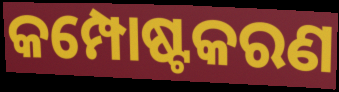
କମ୍ପୋଷ୍ଟକରଣ